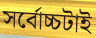
সর্বোচ্চটাই